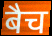
बैच